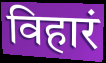
विहारं